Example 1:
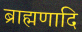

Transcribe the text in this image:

ब्राह्मणादि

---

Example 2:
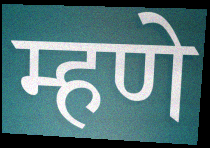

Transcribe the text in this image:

म्हणे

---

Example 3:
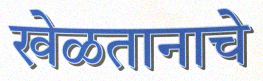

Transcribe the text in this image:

खेळतानाचे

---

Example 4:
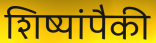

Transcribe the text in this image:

शिष्यांपैकी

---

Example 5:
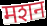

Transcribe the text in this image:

मशन